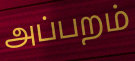
அப்பறம்